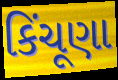
કિંચૂણા